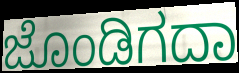
ಜೊಂಡಿಗದಾ